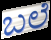
ಬಲೆ